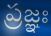
ప్రజ్ఞః